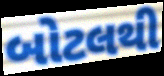
બોટલથી